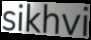
sikhvi